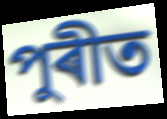
পুৰীত